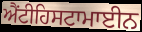
ਐਂਟੀਹਿਸਟਾਮਾਈਨ